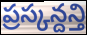
ప్రస్కన్దన్తి